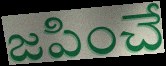
జపించే